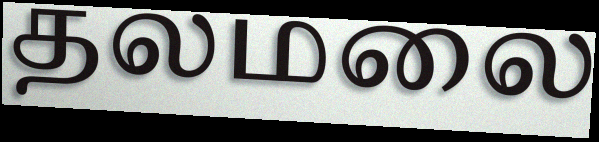
தலமலை